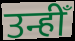
उन्हीँ